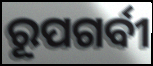
ରୂପଗର୍ବୀ